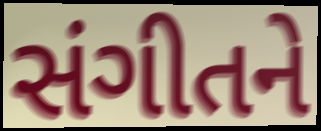
સંગીતને